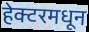
हेक्टरमधून